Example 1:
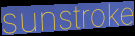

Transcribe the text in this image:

sunstroke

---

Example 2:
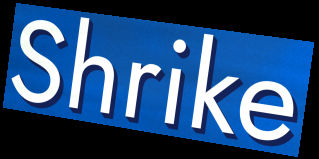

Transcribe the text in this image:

Shrike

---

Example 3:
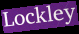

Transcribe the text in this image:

Lockley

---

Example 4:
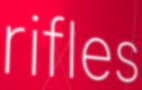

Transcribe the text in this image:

rifles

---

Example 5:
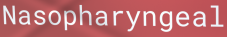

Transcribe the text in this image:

Nasopharyngeal